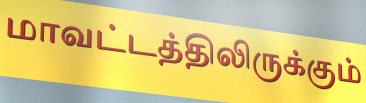
மாவட்டத்திலிருக்கும்